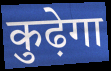
कुढ़ेगा